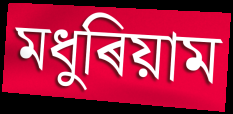
মধুৰিয়াম